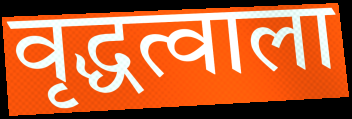
वृद्धत्वाला